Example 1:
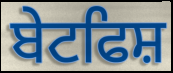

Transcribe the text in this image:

ਬੇਟਫਿਸ਼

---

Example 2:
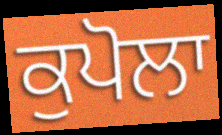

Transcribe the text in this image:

ਕੁਪੋਲਾ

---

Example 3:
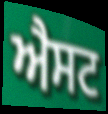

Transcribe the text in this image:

ਐਸਟ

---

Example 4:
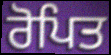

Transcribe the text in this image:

ਰੋਪਿਤ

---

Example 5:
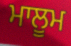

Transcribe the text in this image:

ਮਾਲੂਮ